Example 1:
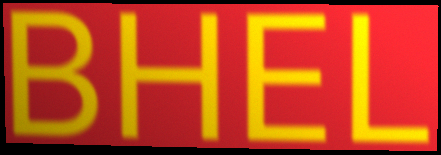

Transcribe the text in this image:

BHEL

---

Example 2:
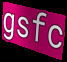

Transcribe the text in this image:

gsfc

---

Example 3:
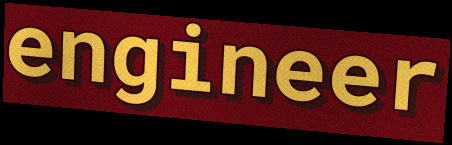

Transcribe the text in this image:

engineer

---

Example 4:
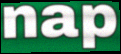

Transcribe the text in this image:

nap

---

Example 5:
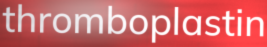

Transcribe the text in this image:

thromboplastin